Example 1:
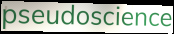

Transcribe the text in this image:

pseudoscience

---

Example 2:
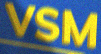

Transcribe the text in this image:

VSM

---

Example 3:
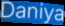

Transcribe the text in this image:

Daniya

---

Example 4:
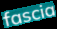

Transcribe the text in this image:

fascia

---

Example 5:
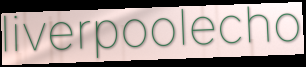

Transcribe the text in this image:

liverpoolecho